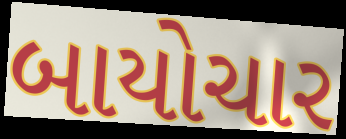
બાયોચાર